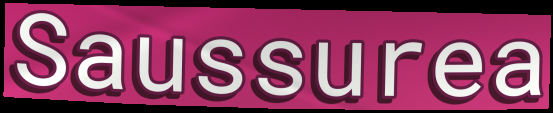
Saussurea